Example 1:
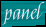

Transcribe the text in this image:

panel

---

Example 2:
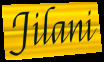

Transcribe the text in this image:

Jilani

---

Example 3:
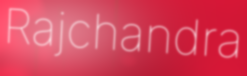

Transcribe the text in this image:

Rajchandra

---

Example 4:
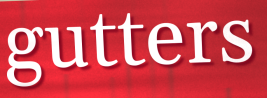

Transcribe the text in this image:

gutters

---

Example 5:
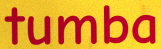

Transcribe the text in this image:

tumba